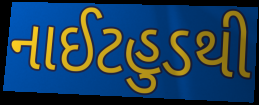
નાઈટહુડથી